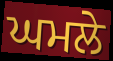
ਘਮਲੇ